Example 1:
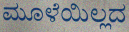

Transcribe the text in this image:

ಮೂಳೆಯಿಲ್ಲದ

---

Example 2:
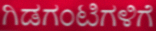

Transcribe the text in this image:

ಗಿಡಗಂಟಿಗಳಿಗೆ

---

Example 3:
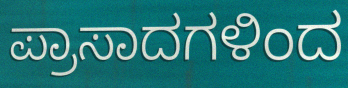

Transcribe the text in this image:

ಪ್ರಾಸಾದಗಳಿಂದ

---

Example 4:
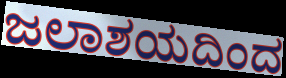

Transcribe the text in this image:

ಜಲಾಶಯದಿಂದ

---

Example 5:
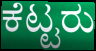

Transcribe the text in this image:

ಕೆಟ್ಟರು